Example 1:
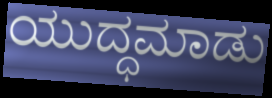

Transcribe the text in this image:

ಯುದ್ಧಮಾಡು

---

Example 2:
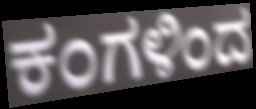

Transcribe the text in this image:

ಕಂಗಳಿಂದ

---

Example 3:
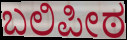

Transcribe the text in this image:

ಬಲಿಪೀಠ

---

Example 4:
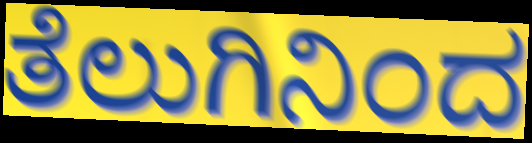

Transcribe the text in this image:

ತೆಲುಗಿನಿಂದ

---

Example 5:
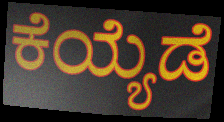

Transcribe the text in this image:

ಕೆಯ್ಯೆಡೆ